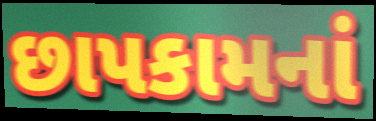
છાપકામનાં